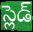
స్లెడ్